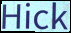
Hick